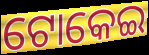
ଟୋକେଇ